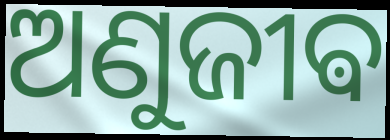
ଅଣୁଜୀଵ